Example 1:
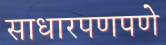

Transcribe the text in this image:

साधारपणपणे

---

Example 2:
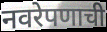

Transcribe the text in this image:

नवरेपणाची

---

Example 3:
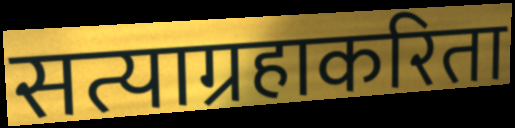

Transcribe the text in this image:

सत्याग्रहाकरिता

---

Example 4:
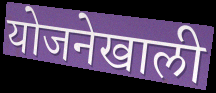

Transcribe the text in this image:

योजनेखाली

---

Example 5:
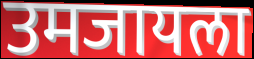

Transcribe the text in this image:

उमजायला